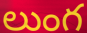
లుంగ